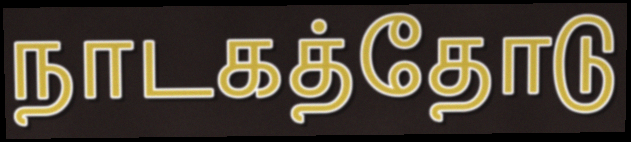
நாடகத்தோடு